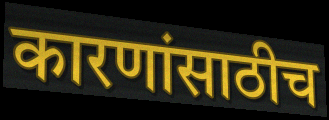
कारणांसाठीच